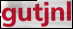
gutjnl